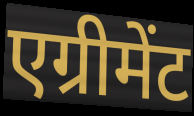
एग्रीमेंट